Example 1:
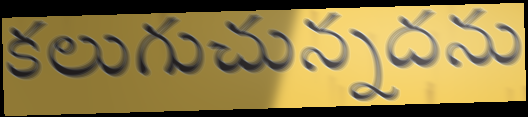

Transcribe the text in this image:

కలుగుచున్నదను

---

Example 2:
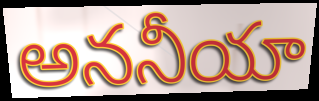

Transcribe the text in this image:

అననీయా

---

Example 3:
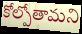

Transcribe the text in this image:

కోల్పోతామని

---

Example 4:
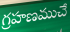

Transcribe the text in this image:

గ్రహణముచే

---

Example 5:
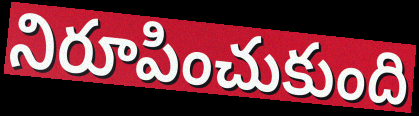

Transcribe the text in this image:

నిరూపించుకుంది